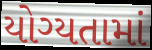
યોગ્યતામાં